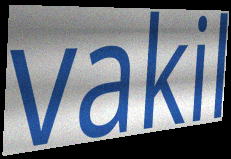
vakil